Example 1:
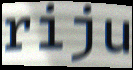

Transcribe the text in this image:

riju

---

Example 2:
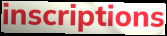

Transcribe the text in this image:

inscriptions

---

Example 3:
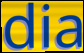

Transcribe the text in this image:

dia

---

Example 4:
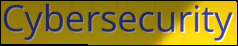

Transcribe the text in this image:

Cybersecurity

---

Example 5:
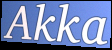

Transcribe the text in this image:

Akka